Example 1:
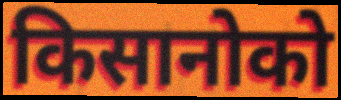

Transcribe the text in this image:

किसानोको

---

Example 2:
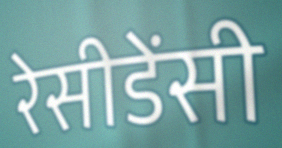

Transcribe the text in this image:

रेसीडेंसी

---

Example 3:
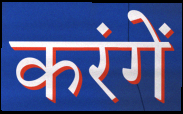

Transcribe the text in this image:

करंगें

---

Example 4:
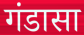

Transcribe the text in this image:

गंडासा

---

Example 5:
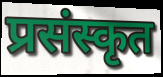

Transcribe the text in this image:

प्रसंस्कृत